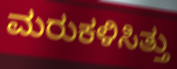
ಮರುಕಳಿಸಿತ್ತು